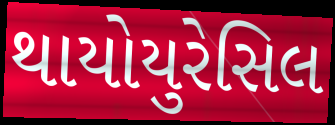
થાયોયુરેસિલ